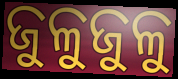
ଜୁଳୁଜୁଳୁ